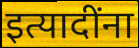
इत्यादींना